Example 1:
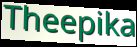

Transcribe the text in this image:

Theepika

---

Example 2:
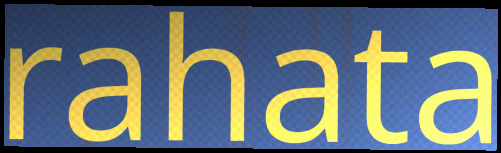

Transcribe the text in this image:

rahata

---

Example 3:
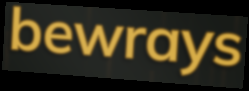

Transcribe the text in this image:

bewrays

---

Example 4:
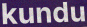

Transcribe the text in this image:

kundu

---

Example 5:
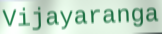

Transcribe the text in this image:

Vijayaranga